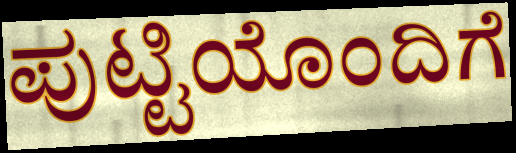
ಪುಟ್ಟಿಯೊಂದಿಗೆ